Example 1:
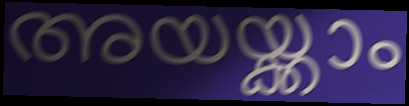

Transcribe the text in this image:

അയയ്ക്കാം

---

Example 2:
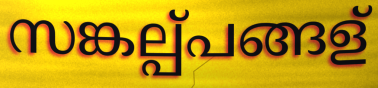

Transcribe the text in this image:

സങ്കല്പ്പങ്ങള്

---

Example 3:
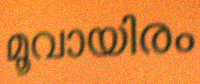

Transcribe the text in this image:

മൂവായിരം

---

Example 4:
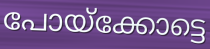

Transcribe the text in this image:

പോയ്ക്കോട്ടെ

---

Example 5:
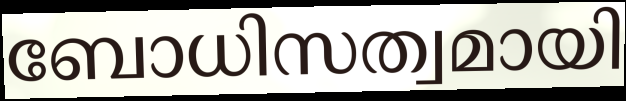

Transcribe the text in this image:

ബോധിസത്വമായി